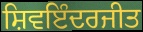
ਸ਼ਿਵਇੰਦਰਜੀਤ